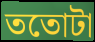
ততোটা